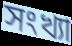
সংখ্যা